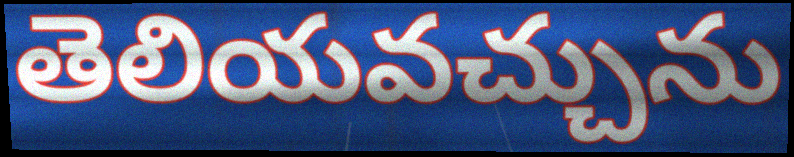
తెలియవచ్చును